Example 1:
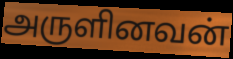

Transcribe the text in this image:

அருளினவன்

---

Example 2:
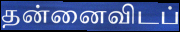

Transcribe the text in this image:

தன்னைவிடப்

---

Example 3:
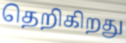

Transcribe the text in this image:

தெறிகிறது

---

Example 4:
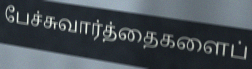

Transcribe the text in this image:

பேச்சுவார்த்தைகளைப்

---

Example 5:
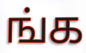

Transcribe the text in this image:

ங்க